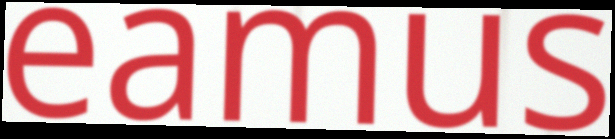
eamus